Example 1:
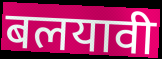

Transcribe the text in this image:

बलयावी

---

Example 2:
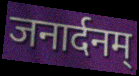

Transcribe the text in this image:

जनार्दनम्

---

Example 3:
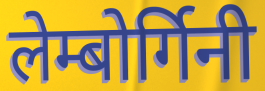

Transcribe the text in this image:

लेम्बोर्गिनी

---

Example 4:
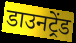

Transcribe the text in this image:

डाउनट्रेंड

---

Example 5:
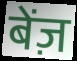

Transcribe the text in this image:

बेंज़